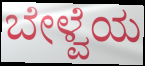
ಬೇಳ್ವೆಯ